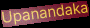
Upanandaka